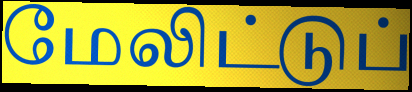
மேலிட்டுப்